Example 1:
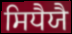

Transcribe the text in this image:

ਸਿਧੈਯੈ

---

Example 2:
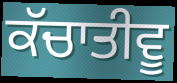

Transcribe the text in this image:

ਕੱਚਾਤੀਵੂ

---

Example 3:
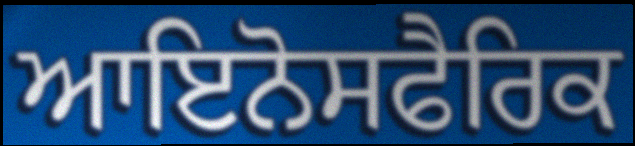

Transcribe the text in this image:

ਆਇਨੋਸਫੈਰਿਕ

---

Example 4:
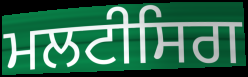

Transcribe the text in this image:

ਮਲਟੀਸਿਗ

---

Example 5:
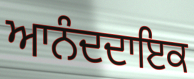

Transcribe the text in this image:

ਆਨੰਦਦਾਇਕ